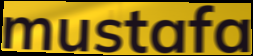
mustafa